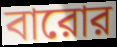
বারোর